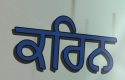
ਕਰਿਨ